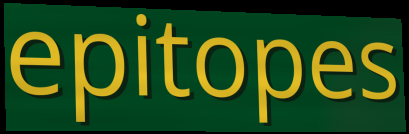
epitopes